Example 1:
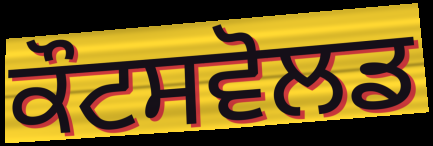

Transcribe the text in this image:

ਕੌਟਸਵੋਲਡ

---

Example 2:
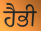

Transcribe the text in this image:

ਹੈਭੀ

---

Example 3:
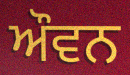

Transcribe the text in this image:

ਔਵਨ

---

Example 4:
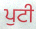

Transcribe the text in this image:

ਪੁਟੀ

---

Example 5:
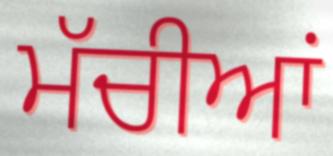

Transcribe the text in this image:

ਮੱਚੀਆਂ